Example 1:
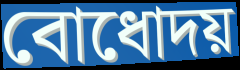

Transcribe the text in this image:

বোধোদয়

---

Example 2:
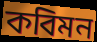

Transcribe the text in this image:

কবিমন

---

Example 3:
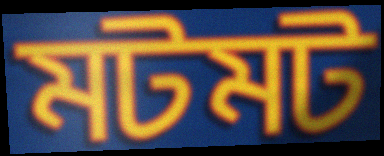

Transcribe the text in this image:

মটমট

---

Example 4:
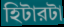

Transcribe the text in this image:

হিটারটা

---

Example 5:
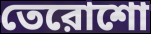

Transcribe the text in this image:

তেরোশো